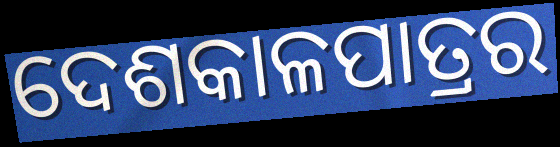
ଦେଶକାଳପାତ୍ରର